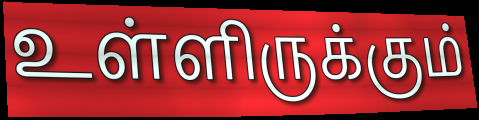
உள்ளிருக்கும்